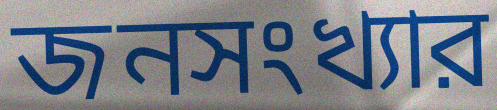
জনসংখ্যার